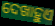
ଦେଖାହୁଏ